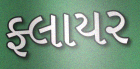
ફ્લાયર